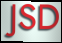
JSD